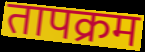
तापक्रम